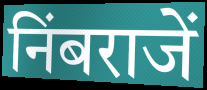
निंबराजें